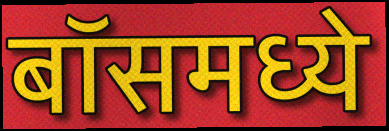
बॉसमध्ये